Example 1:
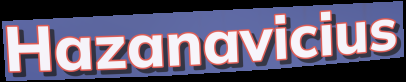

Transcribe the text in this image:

Hazanavicius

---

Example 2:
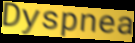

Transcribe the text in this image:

Dyspnea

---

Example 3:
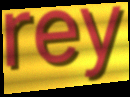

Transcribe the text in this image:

rey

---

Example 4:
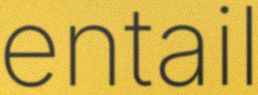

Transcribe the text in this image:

entail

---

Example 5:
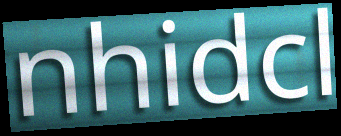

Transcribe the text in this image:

nhidcl